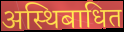
अस्थिबाधित